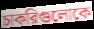
চাকরিগুলোকে